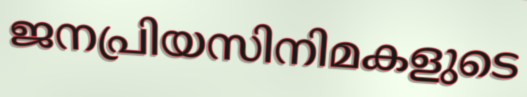
ജനപ്രിയസിനിമകളുടെ